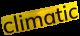
climatic